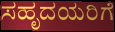
ಸಹೃದಯರಿಗೆ